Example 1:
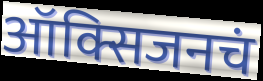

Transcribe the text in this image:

ऑक्सिजनचं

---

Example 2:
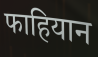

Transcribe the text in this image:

फाहियान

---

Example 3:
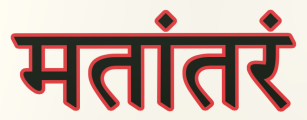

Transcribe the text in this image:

मतांतरं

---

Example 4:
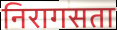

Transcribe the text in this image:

निरागसता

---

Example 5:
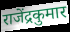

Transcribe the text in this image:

राजेंद्रकुमार